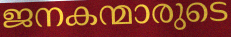
ജനകന്മാരുടെ